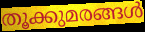
തൂക്കുമരങ്ങൾ